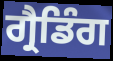
ਗ੍ਰੈਡਿੰਗ